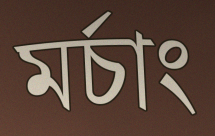
মৰ্চাং